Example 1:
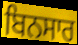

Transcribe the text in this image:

ਬਿਨਸਾਰ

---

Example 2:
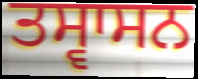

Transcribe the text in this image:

ਤਸ੍ਵਾਸਨ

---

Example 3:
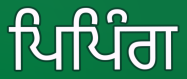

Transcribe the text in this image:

ਪਿਪਿੰਗ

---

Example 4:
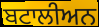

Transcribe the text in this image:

ਬਟਾਲੀਅਨ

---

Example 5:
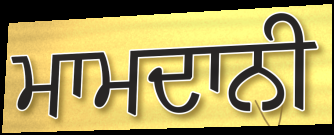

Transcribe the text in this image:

ਮਾਮਦਾਨੀ